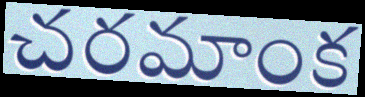
చరమాంక